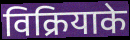
विक्रियाके